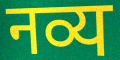
नव्य